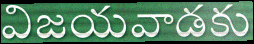
విజయవాడకు